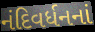
નંદિવર્ધનનાં